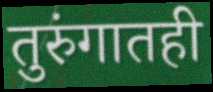
तुरुंगातही